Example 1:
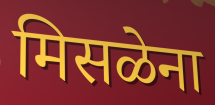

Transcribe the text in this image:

मिसळेना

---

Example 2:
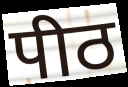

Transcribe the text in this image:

पीठ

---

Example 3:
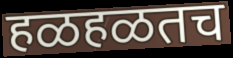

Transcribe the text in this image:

हळहळतच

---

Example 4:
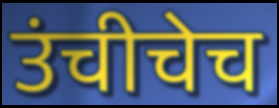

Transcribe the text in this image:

उंचीचेच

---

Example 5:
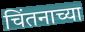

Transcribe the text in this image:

चिंतनाच्या